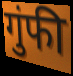
गुंफी